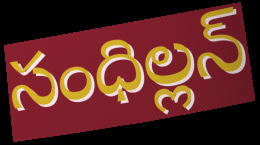
సంధిల్లన్